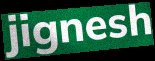
jignesh